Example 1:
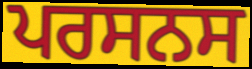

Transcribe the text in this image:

ਪਰਸਨਸ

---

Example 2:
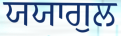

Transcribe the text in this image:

ਯਯਾਗੁਲ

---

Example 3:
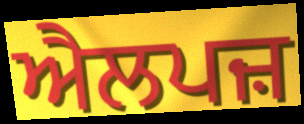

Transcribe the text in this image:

ਐਲਪਜ਼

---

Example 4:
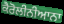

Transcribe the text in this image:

ਕੈਰੋਲੀਨੀਆਨਾ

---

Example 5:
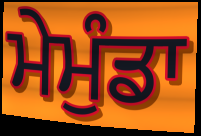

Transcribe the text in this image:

ਮੇਮੁੰਡਾ